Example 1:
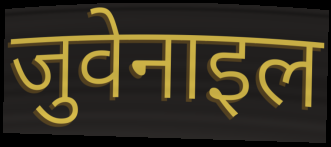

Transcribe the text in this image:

जुवेनाइल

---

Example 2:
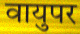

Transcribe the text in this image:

वायुपर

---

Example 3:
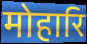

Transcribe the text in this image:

मोहारि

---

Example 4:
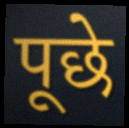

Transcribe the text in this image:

पूछे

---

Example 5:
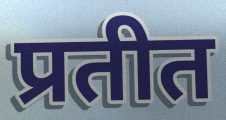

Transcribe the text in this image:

प्रतीत